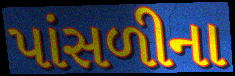
પાંસળીના